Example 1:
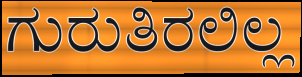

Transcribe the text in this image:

ಗುರುತಿರಲಿಲ್ಲ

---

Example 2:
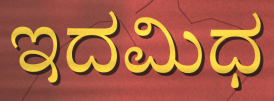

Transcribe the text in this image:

ಇದಮಿಧ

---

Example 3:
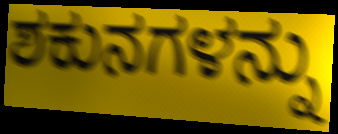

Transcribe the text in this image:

ಶಕುನಗಳನ್ನು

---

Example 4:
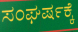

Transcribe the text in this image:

ಸಂಘರ್ಷಕ್ಕೆ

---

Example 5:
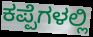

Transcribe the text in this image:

ಕಪ್ಪೆಗಳಲ್ಲಿ